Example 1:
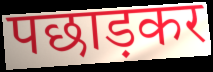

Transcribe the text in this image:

पछाड़कर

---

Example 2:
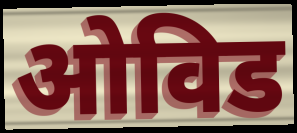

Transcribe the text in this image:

ओविड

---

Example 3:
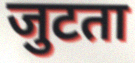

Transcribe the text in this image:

जुटता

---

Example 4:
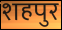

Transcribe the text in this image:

शहपुर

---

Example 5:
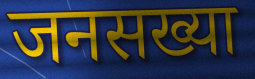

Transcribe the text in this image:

जनसख्या